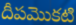
దీపమొకటి